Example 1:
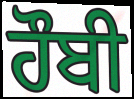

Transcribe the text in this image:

ਹੌਬੀ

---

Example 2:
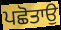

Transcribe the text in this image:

ਪਛੋਤਾਉ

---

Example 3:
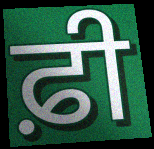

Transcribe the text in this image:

ਫ਼ੀ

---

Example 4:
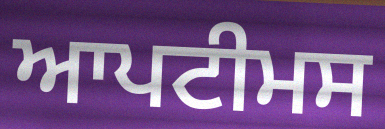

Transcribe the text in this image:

ਆਪਟੀਮਸ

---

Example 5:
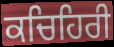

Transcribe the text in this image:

ਕਚਿਹਿਰੀ